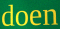
doen